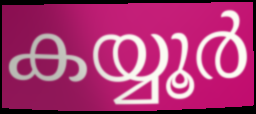
കയ്യൂർ